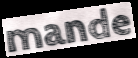
mande